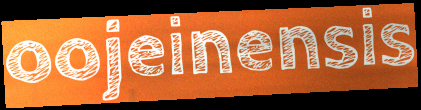
oojeinensis